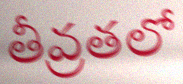
తీవ్రతలో